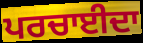
ਪਰਚਾਈਦਾ